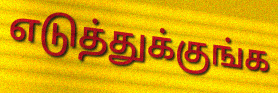
எடுத்துக்குங்க